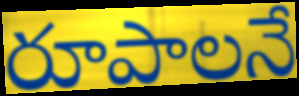
రూపాలనే